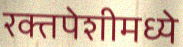
रक्तपेशीमध्ये